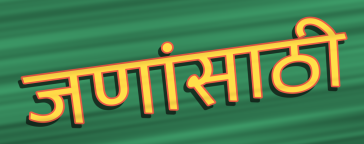
जणांसाठी